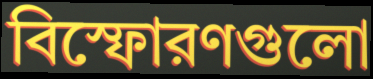
বিস্ফোরণগুলো